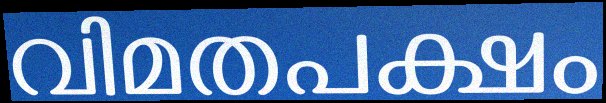
വിമതപക്ഷം